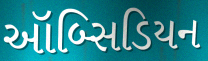
ઑબ્સિડિયન